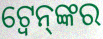
ଟ୍ୱେନ୍‌ଙ୍କର